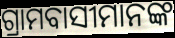
ଗ୍ରାମବାସୀମାନଙ୍କ